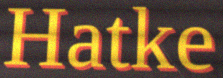
Hatke